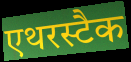
एथरस्टैक